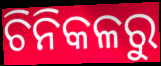
ଚିନିକଳରୁ